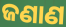
ଜଣାଣ